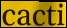
cacti